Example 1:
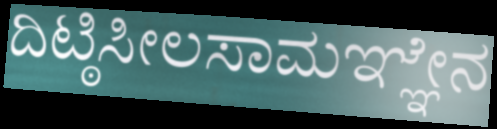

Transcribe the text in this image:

ದಿಟ್ಠಿಸೀಲಸಾಮಞ್ಞೇನ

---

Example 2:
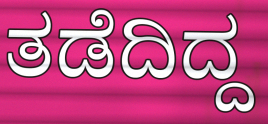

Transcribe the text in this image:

ತಡೆದಿದ್ದ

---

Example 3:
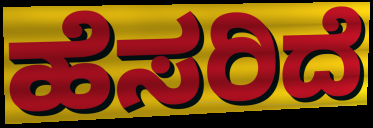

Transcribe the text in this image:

ಹೆಸರಿದೆ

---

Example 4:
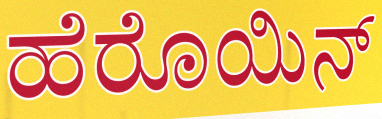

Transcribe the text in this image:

ಹೆರೊಯಿನ್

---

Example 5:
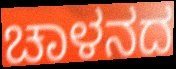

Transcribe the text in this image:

ಚಾಳನದ